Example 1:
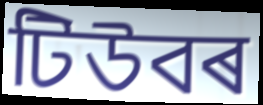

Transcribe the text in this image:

টিউবৰ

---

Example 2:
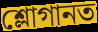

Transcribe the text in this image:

শ্লোগানত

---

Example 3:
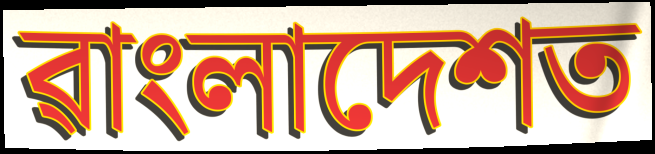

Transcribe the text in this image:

ৱাংলাদেশত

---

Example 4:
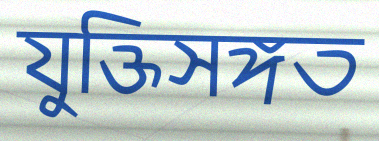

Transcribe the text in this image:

যুক্তিসঙ্গত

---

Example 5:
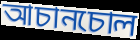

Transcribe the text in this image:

আচানচোল